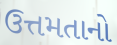
ઉત્તમતાનો